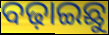
ବଢ଼ାଇଛୁ